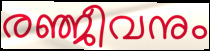
രഞ്ജീവനും